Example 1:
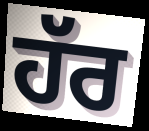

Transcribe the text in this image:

ਹੱਰ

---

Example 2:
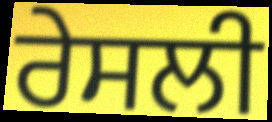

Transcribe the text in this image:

ਰੇਸਲੀ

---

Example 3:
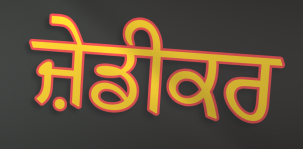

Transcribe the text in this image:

ਜ਼ੇਡੀਕਰ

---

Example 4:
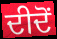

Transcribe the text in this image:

ਦੀਦੋਂ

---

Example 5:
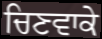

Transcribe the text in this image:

ਚਿਣਵਾਕੇ